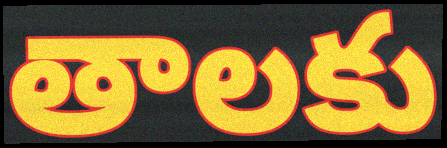
తాలకు